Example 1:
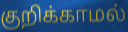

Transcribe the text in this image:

குறிக்காமல்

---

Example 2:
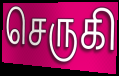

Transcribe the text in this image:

செருகி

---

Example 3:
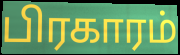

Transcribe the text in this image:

பிரகாரம்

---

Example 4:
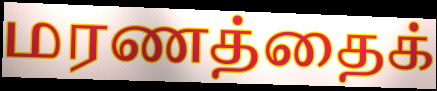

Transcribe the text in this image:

மரணத்தைக்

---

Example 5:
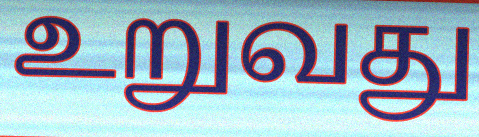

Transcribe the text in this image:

உறுவது